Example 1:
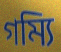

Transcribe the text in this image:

গম্যি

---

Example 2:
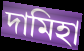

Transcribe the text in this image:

দামিহা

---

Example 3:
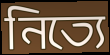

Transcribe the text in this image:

নিত্যে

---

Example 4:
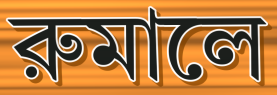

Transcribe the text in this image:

রুমালে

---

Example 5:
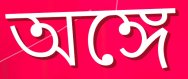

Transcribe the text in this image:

অঙ্গে